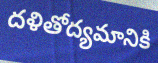
దళితోద్యమానికి